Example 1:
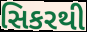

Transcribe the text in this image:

સિકરથી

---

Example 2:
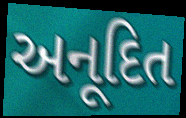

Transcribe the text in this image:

અનૂદિત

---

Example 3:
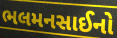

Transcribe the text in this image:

ભલમનસાઈનો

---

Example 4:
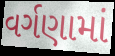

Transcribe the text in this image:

વર્ગણામાં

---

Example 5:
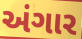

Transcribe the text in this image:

અંગાર